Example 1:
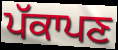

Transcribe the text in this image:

ਪੱਕਾਪਣ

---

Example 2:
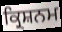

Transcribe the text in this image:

ਕ੍ਰਿਸ਼ਨਮ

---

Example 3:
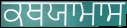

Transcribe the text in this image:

ਕਥਯਾਮਾਸ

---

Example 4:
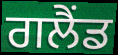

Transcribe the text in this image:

ਗਲੈਂਡ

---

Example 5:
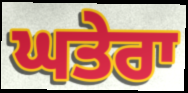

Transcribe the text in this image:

ਘਤੇਰਾ